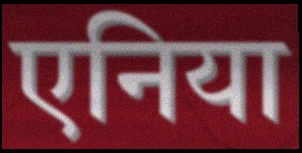
एनिया